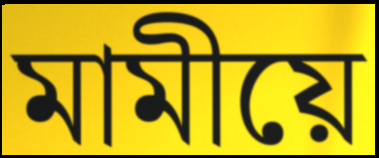
মামীয়ে